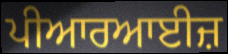
ਪੀਆਰਆਈਜ਼